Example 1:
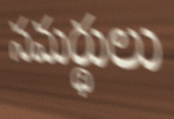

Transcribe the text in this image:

సమర్థులు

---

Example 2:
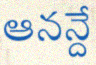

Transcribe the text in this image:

ఆనన్దే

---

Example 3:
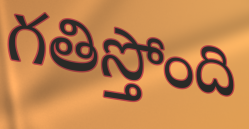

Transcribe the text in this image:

గతిస్తోంది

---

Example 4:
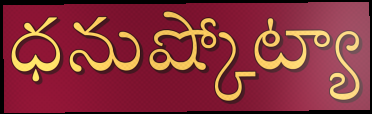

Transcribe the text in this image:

ధనుష్కోట్యా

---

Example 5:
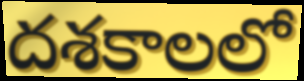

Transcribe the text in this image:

దశకాలలో